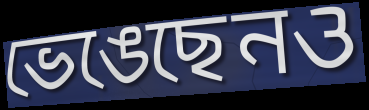
ভেঙেছেনও